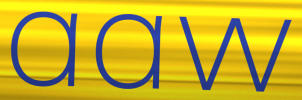
aaw